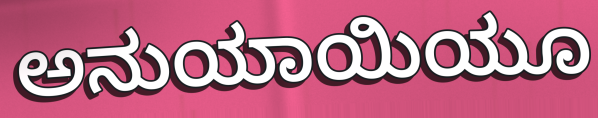
ಅನುಯಾಯಿಯೂ